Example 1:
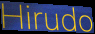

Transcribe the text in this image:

Hirudo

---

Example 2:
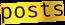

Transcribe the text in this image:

posts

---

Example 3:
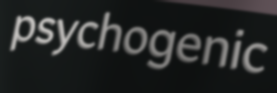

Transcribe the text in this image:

psychogenic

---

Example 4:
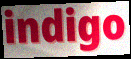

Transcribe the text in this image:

indigo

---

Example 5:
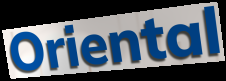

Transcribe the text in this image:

Oriental